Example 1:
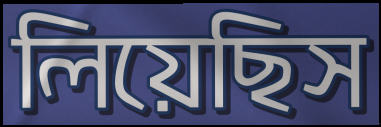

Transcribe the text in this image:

লিয়েছিস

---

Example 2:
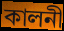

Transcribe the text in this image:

কালনী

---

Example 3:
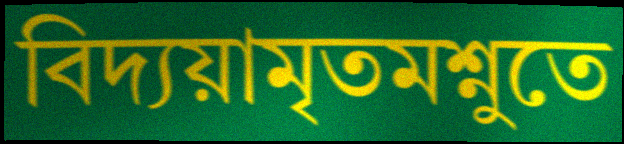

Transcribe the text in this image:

বিদ্যয়ামৃতমশ্নুতে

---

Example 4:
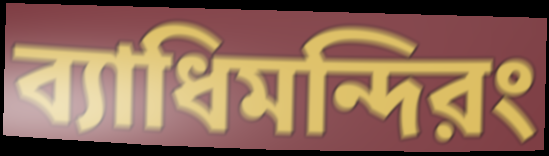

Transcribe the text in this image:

ব্যাধিমন্দিরং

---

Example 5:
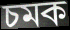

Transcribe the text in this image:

চমক